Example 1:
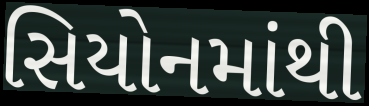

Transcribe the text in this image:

સિયોનમાંથી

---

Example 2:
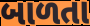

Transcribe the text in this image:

બાળતા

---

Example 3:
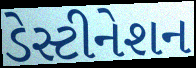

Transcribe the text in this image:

ડેસ્ટીનેશન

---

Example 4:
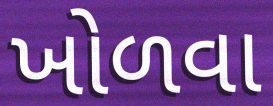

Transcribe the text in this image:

ખોળવા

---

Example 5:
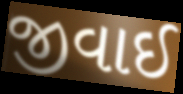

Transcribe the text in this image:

જીવાઈ